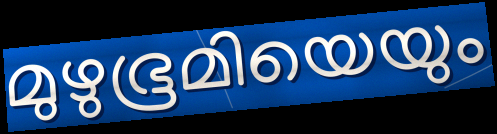
മുഴുഭൂമിയെയും